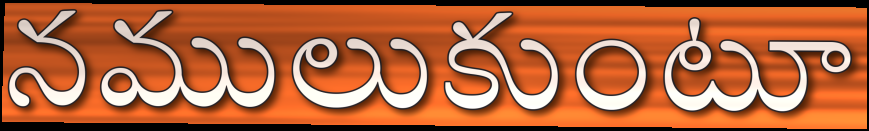
నములుకుంటూ